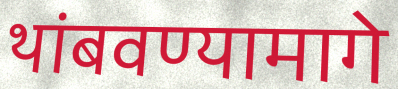
थांबवण्यामागे